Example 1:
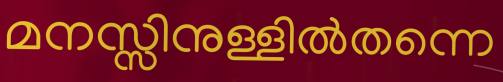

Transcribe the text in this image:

മനസ്സിനുള്ളിൽതന്നെ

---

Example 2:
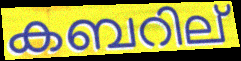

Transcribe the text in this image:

കബറില്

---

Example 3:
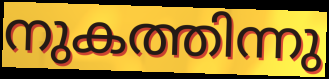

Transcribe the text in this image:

നുകത്തിന്നു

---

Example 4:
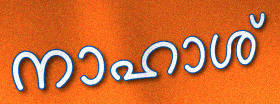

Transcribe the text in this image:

നാഹാശ്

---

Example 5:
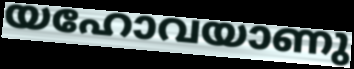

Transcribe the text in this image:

യഹോവയാണു